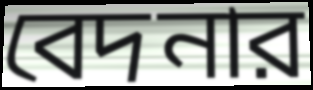
বেদনার